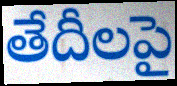
తేదీలపై